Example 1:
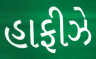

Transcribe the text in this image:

હાફીઝે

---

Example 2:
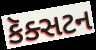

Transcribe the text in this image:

કૅક્સટન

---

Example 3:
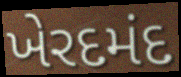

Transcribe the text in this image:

ખેરદમંદ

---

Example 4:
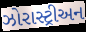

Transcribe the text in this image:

ઝોરાસ્ટ્રીઅન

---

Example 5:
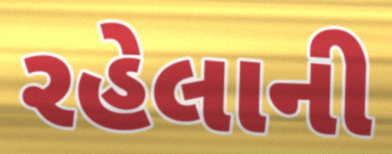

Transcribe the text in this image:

રહેલાની